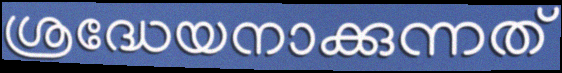
ശ്രദ്ധേയനാക്കുന്നത്